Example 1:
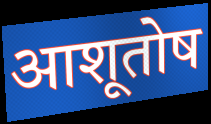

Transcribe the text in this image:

आशूतोष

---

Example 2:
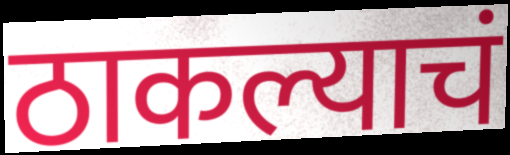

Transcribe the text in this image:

ठाकल्याचं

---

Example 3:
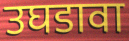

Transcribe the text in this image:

उघडावा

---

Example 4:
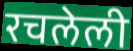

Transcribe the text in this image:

रचलेली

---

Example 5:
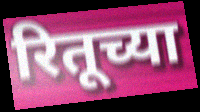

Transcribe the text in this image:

रितूच्या